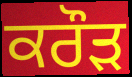
ਕਰੌੜ